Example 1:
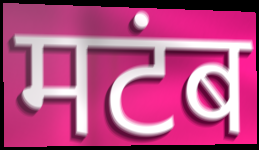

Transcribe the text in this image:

मटंब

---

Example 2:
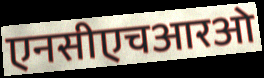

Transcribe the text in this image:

एनसीएचआरओ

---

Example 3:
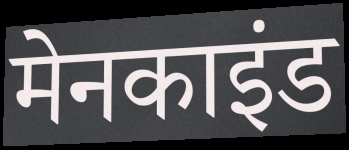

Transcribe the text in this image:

मेनकाइंड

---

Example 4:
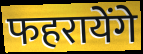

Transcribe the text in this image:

फहरायेंगे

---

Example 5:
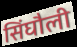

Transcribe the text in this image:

सिंघौली